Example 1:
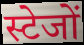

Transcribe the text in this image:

स्टेजों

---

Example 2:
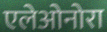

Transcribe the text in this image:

एलेओनोरा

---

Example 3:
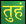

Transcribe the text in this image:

तुहं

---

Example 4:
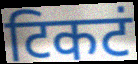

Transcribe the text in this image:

टिकटं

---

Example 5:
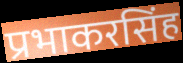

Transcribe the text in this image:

प्रभाकरसिंह